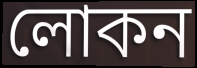
লোকন